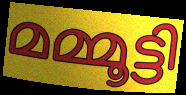
മമ്മൂട്ടി